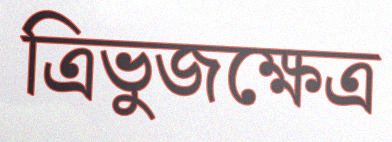
ত্রিভুজক্ষেত্র